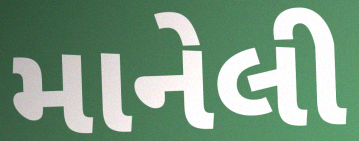
માનેલી